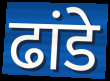
ढांडे